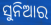
ସୁନିଆର